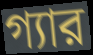
গ্যার